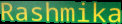
Rashmika